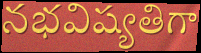
నభవిష్యతిగా